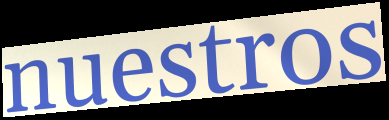
nuestros